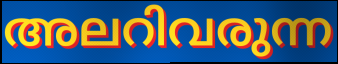
അലറിവരുന്ന